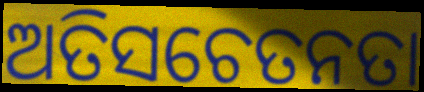
ଅତିସଚେତନତା